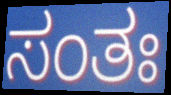
ಸಂತಃ